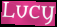
Lucy